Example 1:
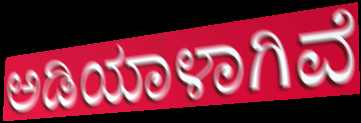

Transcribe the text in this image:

ಅಡಿಯಾಳಾಗಿವೆ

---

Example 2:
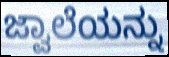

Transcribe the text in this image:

ಜ್ವಾಲೆಯನ್ನು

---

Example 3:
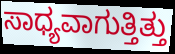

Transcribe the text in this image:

ಸಾಧ್ಯವಾಗುತ್ತಿತ್ತು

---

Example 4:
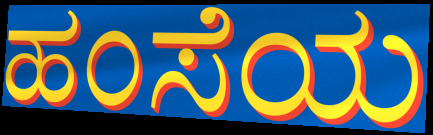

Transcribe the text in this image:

ಹಂಸೆಯ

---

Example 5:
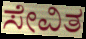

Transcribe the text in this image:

ಸೇವಿತ